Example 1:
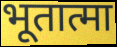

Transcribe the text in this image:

भूतात्मा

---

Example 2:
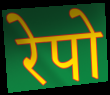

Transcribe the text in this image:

रेपो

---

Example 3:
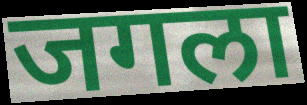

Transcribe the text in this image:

जगला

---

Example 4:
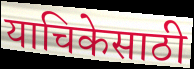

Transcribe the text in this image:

याचिकेसाठी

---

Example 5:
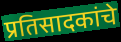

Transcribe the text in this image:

प्रतिसादकांचे